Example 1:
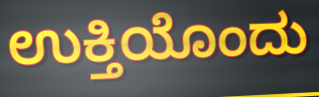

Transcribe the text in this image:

ಉಕ್ತಿಯೊಂದು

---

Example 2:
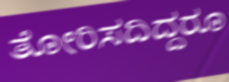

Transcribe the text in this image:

ತೋರಿಸದಿದ್ದರೂ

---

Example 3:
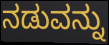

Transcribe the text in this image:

ನಡುವನ್ನು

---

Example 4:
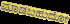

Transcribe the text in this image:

ಮಾಡಬಹುದೋ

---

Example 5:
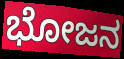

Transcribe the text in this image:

ಭೋಜನ